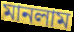
মানলাম